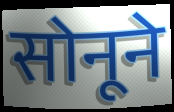
सोनूने